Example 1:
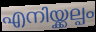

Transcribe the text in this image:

എനിയ്ക്കല്പം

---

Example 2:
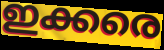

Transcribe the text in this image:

ഇക്കരെ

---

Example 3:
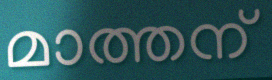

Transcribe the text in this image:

മാത്തന്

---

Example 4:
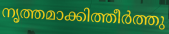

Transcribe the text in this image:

നൃത്തമാക്കിത്തീർത്തു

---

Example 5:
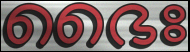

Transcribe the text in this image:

ഭൈഃ